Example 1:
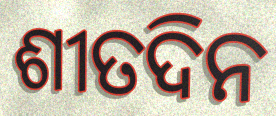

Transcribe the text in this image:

ଶୀତଦିନ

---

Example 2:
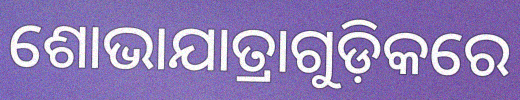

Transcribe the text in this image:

ଶୋଭାଯାତ୍ରାଗୁଡ଼ିକରେ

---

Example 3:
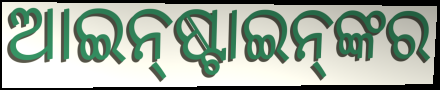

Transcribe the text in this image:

ଆଇନ୍‌ଷ୍ଟାଇନ୍‌ଙ୍କର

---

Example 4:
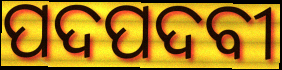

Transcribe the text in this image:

ପଦପଦବୀ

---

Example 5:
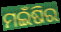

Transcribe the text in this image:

ମଇଁଷିର